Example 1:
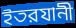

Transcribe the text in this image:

ইতরযানী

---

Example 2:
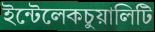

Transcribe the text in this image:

ইন্টেলেকচুয়ালিটি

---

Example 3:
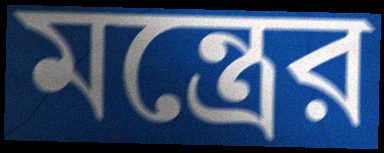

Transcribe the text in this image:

মন্ত্রের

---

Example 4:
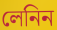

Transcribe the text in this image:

লেনিন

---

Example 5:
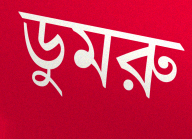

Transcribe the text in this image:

ডুমরু